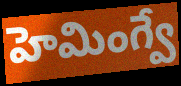
హెమింగ్వే